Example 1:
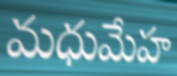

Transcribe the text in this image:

మధుమేహ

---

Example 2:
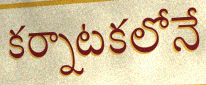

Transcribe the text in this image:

కర్నాటకలోనే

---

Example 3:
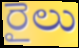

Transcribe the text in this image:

రైలు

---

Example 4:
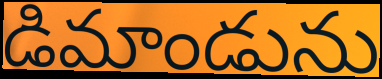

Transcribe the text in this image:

డిమాండును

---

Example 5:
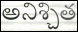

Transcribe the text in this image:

అనిశ్చిత